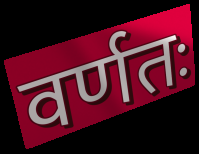
वर्णतः